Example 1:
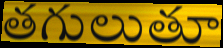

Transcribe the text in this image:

తగులుతూ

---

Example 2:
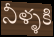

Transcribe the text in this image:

నీళ్ళకి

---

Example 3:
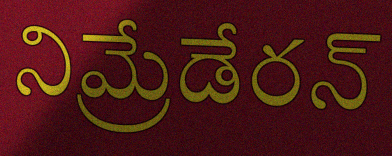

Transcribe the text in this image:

నిమ్రేడేరన్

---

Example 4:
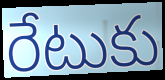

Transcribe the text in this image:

రేటుకు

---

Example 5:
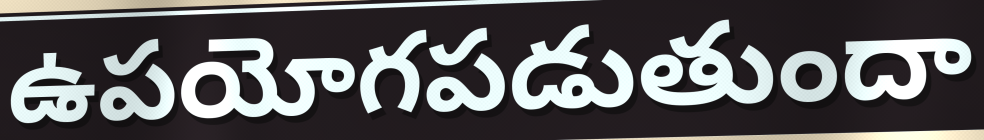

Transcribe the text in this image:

ఉపయోగపడుతుందా